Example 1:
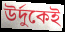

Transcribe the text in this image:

উর্দুকেই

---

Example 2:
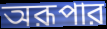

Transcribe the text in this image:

অরূপার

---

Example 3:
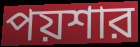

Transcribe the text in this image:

পয়শার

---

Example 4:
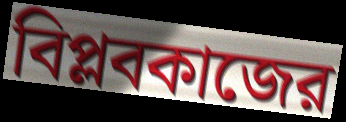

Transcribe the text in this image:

বিপ্লবকাজের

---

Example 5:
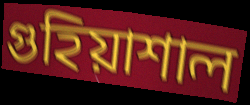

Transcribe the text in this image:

গুহিয়াশাল